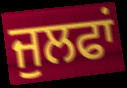
ਜੁਲਫਾਂ